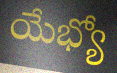
యేభ్యో